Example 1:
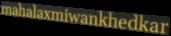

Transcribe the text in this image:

mahalaxmiwankhedkar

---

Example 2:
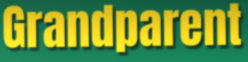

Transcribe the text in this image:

Grandparent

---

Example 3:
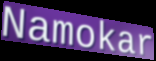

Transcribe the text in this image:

Namokar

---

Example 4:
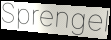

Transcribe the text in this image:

Sprengel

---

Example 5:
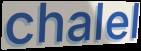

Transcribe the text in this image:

chalel